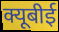
क्यूबीई